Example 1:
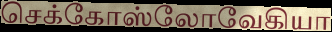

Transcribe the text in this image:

செக்கோஸ்லோவேகியா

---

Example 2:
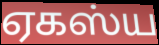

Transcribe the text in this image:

ஏகஸ்ய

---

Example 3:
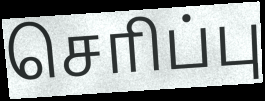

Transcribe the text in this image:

செரிப்பு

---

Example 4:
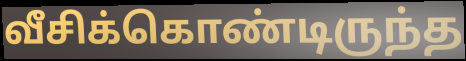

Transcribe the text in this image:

வீசிக்கொண்டிருந்த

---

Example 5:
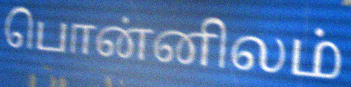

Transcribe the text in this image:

பொன்னிலம்